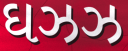
ઘઝઝ